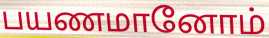
பயணமானோம்